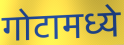
गोटामध्ये